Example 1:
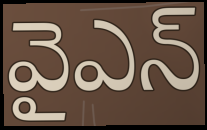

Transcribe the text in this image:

వైఎన్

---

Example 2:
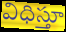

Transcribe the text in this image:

విధిస్తూ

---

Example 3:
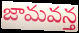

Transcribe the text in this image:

జామవన్త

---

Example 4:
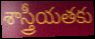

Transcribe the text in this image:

శాస్త్రీయతకు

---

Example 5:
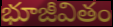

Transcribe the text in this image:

భూజీవితం